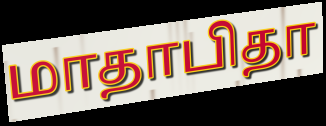
மாதாபிதா